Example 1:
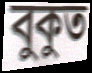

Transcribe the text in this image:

বুকুত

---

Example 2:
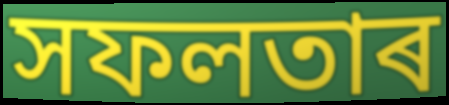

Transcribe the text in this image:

সফলতাৰ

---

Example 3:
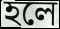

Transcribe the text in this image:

হলে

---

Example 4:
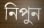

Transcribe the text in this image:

নিপুন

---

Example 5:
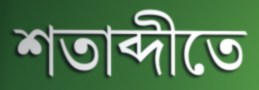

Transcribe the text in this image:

শতাব্দীতে